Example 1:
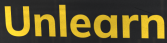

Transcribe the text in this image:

Unlearn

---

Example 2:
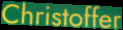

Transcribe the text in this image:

Christoffer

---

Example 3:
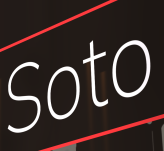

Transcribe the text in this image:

Soto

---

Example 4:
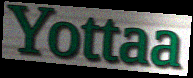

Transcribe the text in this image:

Yottaa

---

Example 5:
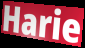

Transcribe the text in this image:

Harie